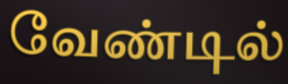
வேண்டில்